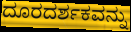
ದೂರದರ್ಶಕವನ್ನು